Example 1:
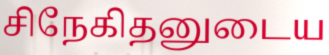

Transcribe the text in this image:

சிநேகிதனுடைய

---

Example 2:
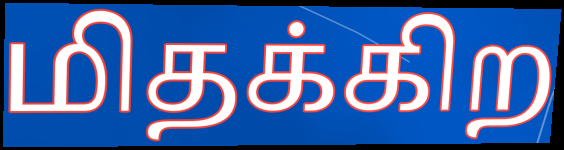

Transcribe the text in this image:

மிதக்கிற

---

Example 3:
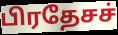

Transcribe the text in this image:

பிரதேசச்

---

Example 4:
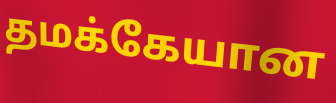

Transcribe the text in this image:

தமக்கேயான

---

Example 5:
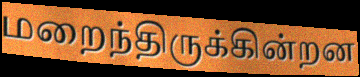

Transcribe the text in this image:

மறைந்திருக்கின்றன